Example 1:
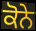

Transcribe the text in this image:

ਕੋਨੇ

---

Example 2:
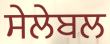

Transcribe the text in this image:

ਸੇਲੇਬਲ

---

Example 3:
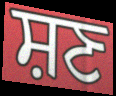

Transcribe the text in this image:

ਸ਼ਣ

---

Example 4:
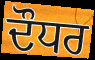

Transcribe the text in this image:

ਦੌਧਰ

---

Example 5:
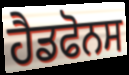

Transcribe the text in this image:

ਹੈਡਫੋਨਸ